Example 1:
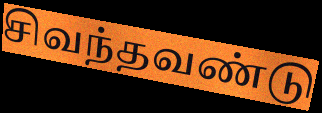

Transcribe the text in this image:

சிவந்தவண்டு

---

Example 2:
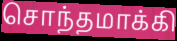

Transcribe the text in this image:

சொந்தமாக்கி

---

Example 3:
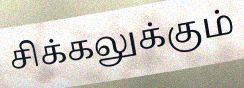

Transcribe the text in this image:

சிக்கலுக்கும்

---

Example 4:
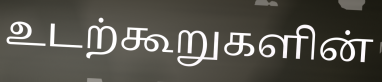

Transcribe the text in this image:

உடற்கூறுகளின்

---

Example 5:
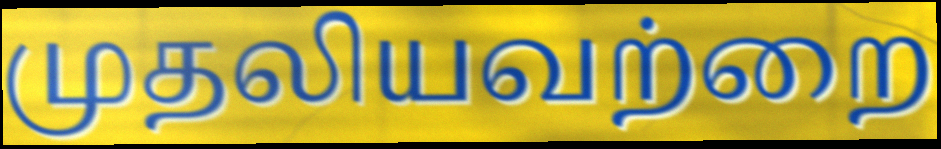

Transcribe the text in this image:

முதலியவற்றை